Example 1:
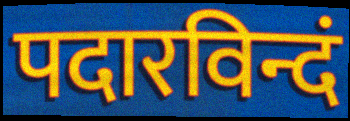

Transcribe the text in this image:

पदारविन्दं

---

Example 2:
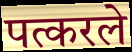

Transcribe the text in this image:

पत्करले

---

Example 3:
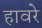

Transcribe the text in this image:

हावरे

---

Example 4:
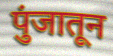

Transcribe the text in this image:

पुंजातून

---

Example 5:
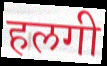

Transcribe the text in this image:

हलगी